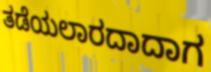
ತಡೆಯಲಾರದಾದಾಗ